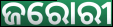
ଜରୋରୀ